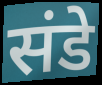
संडे